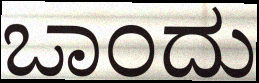
ಒಾಂದು